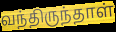
வந்திருந்தாள்